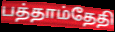
பத்தாம்தேதி